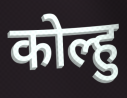
कोल्हु